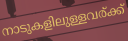
നാടുകളിലുള്ളവര്ക്ക്